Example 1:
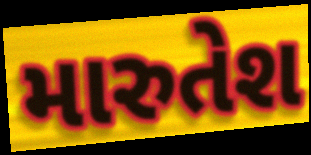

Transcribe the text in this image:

મારુતેશ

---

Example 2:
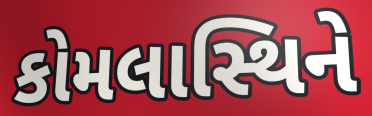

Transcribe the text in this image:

કોમલાસ્થિને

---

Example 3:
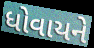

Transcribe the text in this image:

ધોવાયને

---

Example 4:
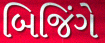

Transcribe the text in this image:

બિજિંગે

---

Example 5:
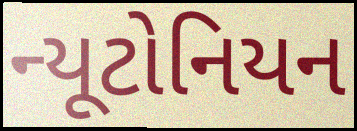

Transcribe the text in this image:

ન્યૂટોનિયન